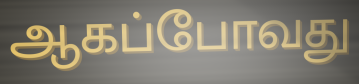
ஆகப்போவது